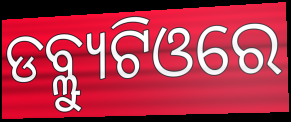
ଡବ୍ଲ୍ୟୁଟିଓରେ